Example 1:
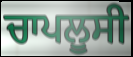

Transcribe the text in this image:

ਚਾਪਲੂਸੀ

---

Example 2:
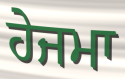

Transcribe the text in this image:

ਹੇਜਮਾ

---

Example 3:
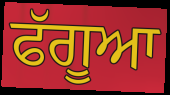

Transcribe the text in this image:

ਫੱਗੂਆ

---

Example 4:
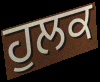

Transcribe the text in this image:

ਹੁਲਕ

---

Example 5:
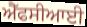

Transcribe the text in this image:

ਐੱਫਸੀਆਈ